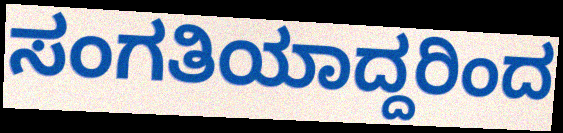
ಸಂಗತಿಯಾದ್ದರಿಂದ